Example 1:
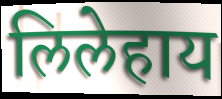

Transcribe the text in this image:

लिलेहाय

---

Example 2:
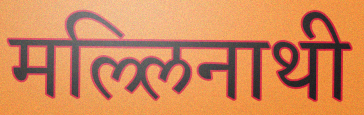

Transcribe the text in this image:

मल्लिनाथी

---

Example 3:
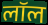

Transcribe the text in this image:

लॉल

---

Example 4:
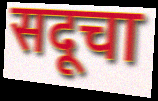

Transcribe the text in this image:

सदूचा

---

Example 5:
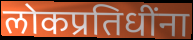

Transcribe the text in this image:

लोकप्रतिधींना